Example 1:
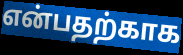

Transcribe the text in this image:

என்பதற்காக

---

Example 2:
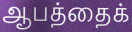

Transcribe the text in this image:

ஆபத்தைக்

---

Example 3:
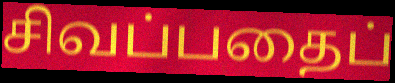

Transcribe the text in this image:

சிவப்பதைப்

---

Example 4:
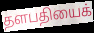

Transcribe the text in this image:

தளபதியைக்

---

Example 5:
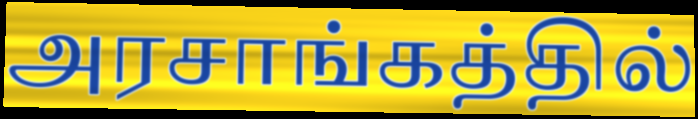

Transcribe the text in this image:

அரசாங்கத்தில்